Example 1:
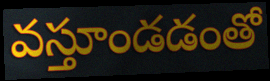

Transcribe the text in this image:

వస్తూండడంతో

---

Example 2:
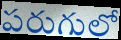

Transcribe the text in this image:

పరుగులో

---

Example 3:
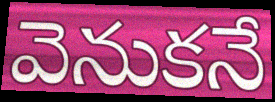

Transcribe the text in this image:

వెనుకనే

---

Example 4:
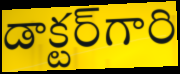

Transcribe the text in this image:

డాక్టర్‌గారి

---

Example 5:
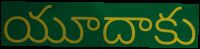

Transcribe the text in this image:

యూదాకు